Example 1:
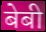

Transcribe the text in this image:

बेबी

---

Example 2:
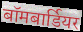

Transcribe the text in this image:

बॉमबार्डियर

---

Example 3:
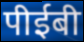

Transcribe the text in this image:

पीईबी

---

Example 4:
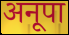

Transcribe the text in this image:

अनूपा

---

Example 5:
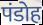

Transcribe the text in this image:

पंडोह